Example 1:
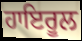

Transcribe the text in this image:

ਹਾਇਰੂਲ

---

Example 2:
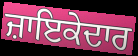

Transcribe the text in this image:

ਜ਼ਾਇਕੇਦਾਰ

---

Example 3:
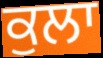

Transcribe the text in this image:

ਕੁਲਾ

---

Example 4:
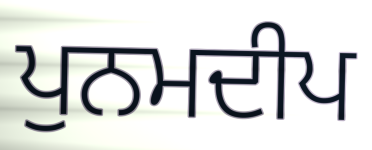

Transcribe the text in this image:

ਪੁਨਮਦੀਪ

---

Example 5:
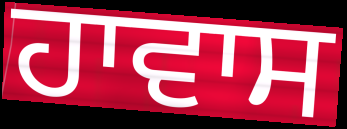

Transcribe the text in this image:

ਹਾਵਾਸ